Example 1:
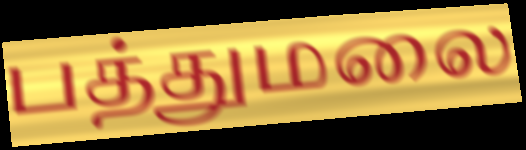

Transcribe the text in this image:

பத்துமலை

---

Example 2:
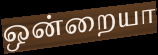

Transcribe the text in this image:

ஒன்றையா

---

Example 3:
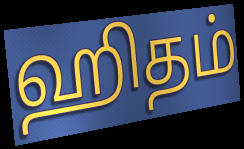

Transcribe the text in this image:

ஹிதம்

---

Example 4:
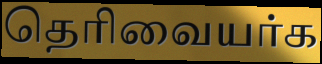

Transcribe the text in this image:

தெரிவையர்க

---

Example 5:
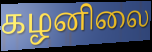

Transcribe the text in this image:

கழனிலை